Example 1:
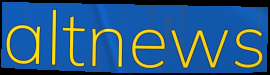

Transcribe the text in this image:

altnews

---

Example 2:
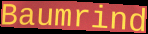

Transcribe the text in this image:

Baumrind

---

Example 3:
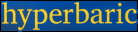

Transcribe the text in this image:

hyperbaric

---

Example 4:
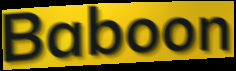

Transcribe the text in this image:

Baboon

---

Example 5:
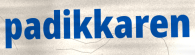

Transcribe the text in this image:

padikkaren